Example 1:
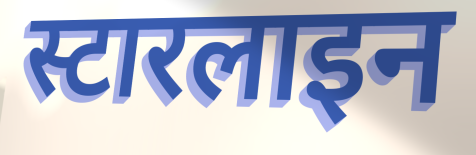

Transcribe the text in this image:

स्टारलाइन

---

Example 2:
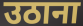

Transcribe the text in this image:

उठाना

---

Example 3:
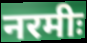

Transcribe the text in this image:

नरमीः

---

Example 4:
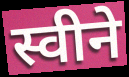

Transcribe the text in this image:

स्वीने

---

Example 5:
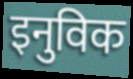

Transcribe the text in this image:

इनुविक